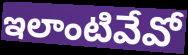
ఇలాంటివేవో